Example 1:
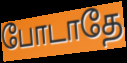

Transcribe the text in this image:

போடாதே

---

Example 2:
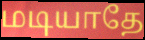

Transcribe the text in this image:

மடியாதே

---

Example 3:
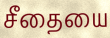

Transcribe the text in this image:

சீதையை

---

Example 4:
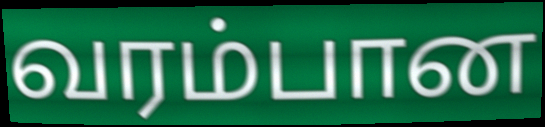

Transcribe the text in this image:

வரம்பான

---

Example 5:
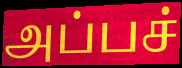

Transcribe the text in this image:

அப்பச்